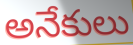
అనేకులు